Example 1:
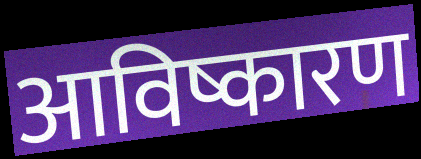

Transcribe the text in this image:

आविष्कारण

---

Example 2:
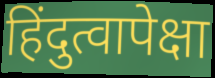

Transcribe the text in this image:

हिंदुत्वापेक्षा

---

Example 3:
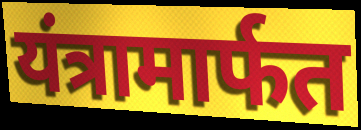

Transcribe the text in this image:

यंत्रामार्फत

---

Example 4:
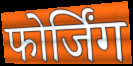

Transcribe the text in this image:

फोर्जिंग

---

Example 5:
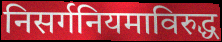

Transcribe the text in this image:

निसर्गनियमाविरुद्ध